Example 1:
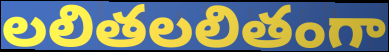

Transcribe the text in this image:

లలితలలితంగా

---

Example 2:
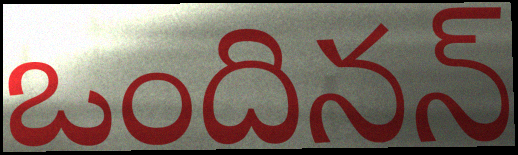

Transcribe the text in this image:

ఒందినన్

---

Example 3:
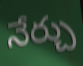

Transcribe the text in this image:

నేర్చు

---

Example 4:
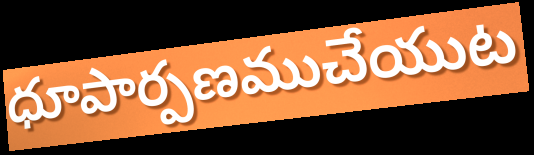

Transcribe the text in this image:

ధూపార్పణముచేయుట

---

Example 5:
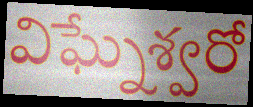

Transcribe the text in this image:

విఘ్నేశ్వరో